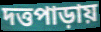
দত্তপাড়ায়